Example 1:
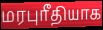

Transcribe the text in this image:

மரபுரீதியாக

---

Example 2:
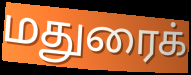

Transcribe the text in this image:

மதுரைக்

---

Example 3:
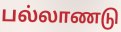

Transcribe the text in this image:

பல்லாணடு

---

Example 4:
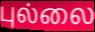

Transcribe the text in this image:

புல்லை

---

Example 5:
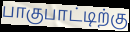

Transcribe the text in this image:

பாகுபாட்டிற்கு